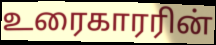
உரைகாரரின்